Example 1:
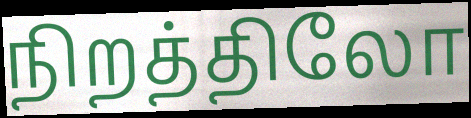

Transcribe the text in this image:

நிறத்திலோ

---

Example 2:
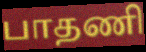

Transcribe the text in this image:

பாதணி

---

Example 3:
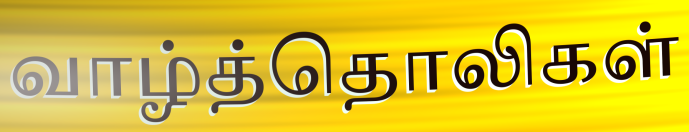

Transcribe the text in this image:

வாழ்த்தொலிகள்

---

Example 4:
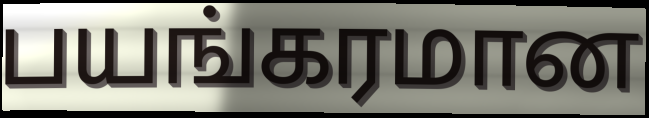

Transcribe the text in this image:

பயங்கரமான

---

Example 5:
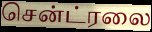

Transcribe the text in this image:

சென்ட்ரலை